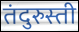
तंदुरुस्ती